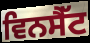
ਵਿਨਸੈੱਟ